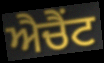
ਐਚੈਂਟ